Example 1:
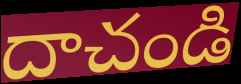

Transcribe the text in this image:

దాచండి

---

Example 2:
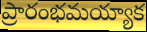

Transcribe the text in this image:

ప్రారంభమయ్యాక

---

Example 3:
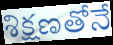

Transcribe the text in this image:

శిక్షణతోనే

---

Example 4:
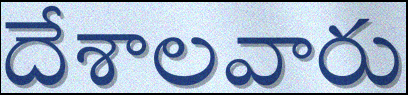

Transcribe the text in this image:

దేశాలవారు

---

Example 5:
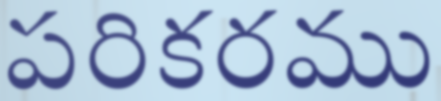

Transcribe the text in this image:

పరికరము